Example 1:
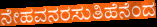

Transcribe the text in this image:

ನೇಹವನರಸುತಿಹೆನೆಂದ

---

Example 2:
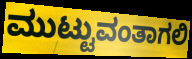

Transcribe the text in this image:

ಮುಟ್ಟುವಂತಾಗಲಿ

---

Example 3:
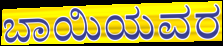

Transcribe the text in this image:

ಬಾಯಿಯವರ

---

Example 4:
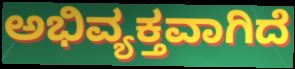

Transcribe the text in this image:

ಅಭಿವ್ಯಕ್ತವಾಗಿದೆ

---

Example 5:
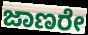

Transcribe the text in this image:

ಜಾಣರೇ